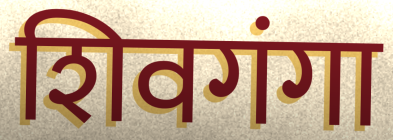
शिवगंगा